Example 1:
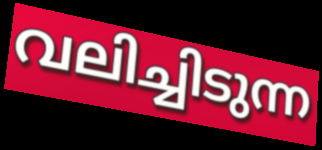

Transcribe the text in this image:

വലിച്ചിടുന്ന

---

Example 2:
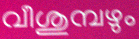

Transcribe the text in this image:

വീശുമ്പഴും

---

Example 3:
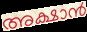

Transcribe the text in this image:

അക്ഷാൻ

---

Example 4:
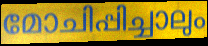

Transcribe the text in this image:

മോചിപ്പിച്ചാലും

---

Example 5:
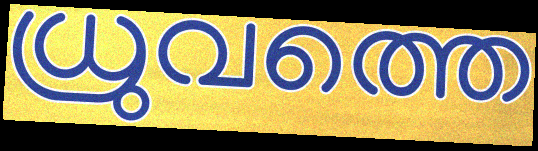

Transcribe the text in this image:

ധ്രുവത്തെ